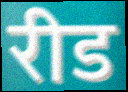
रीड